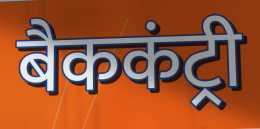
बैककंट्री